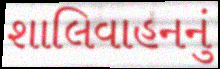
શાલિવાહનનું